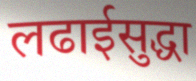
लढाईसुद्धा